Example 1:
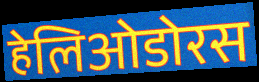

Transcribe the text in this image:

हेलिओडोरस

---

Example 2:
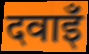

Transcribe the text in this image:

दवाइँ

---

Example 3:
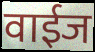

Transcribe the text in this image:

वाईज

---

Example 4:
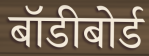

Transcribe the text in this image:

बॉडीबोर्ड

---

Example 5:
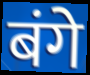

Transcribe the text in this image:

बंगे